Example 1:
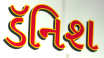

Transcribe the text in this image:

ડૅનિશ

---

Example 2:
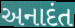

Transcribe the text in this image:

અનાદંત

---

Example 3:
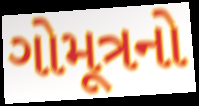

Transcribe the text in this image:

ગોમૂત્રનો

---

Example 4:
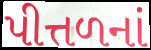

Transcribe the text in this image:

પીત્તળનાં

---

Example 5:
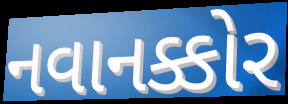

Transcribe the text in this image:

નવાનક્કોર